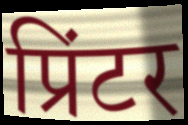
प्रिंटर